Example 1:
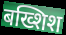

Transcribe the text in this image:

बख्शिश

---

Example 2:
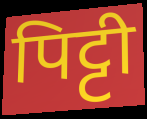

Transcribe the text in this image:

पिट्टी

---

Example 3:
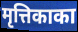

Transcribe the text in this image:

मृत्तिकाका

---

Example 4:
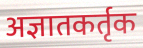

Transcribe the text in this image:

अज्ञातकर्तृक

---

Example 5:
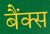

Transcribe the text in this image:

बैंक्स